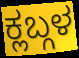
ಕ್ಲಬ್ಗಳ